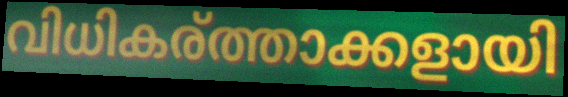
വിധികര്ത്താക്കളായി